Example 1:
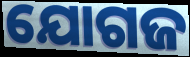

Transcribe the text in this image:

ଯୋଗଜ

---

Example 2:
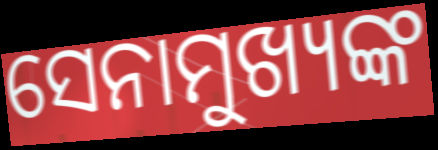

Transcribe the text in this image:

ସେନାମୁଖ୍ୟଙ୍କ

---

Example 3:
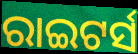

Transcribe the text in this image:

ରାଇଟର୍ସ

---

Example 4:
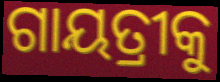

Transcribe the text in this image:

ଗାୟତ୍ରୀକୁ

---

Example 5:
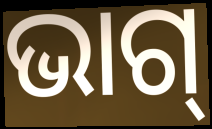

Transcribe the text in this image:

ଭାଗ୍